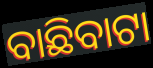
ବାଛିବାଟା